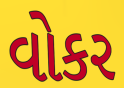
વોકર